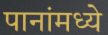
पानांमध्ये